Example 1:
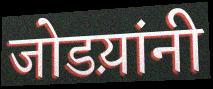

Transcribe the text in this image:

जोडय़ांनी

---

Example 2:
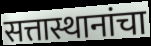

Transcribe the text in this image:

सत्तास्थानांचा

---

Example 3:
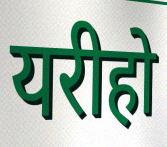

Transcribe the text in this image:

यरीहो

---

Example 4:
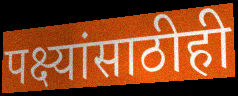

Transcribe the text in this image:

पक्ष्यांसाठीही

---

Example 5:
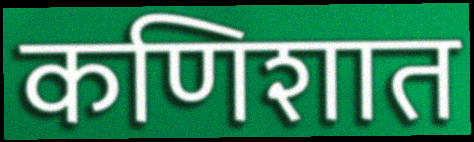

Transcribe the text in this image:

कणिशात